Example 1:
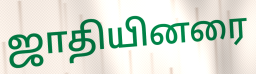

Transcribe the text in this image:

ஜாதியினரை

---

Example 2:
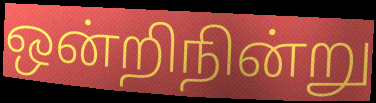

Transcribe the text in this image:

ஒன்றிநின்று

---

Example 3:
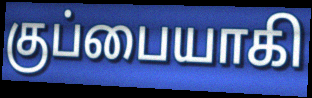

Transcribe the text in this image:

குப்பையாகி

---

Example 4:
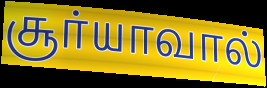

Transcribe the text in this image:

சூர்யாவால்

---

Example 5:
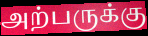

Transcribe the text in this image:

அற்பருக்கு